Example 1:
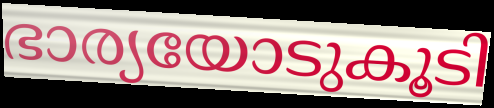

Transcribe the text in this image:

ഭാര്യയോടുകൂടി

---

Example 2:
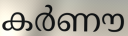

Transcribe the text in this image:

കർണൗ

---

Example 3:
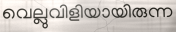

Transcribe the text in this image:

വെല്ലുവിളിയായിരുന്ന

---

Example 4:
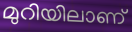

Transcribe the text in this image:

മുറിയിലാണ്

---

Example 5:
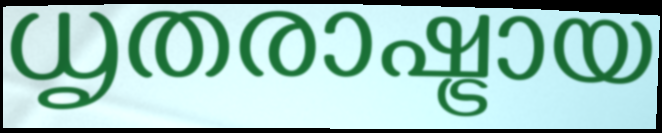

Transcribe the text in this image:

ധൃതരാഷ്ട്രായ